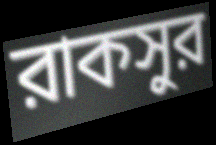
রাকসুর